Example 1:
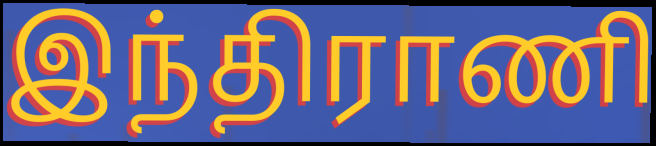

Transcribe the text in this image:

இந்திராணி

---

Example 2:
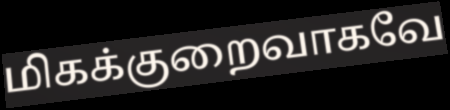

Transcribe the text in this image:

மிகக்குறைவாகவே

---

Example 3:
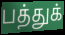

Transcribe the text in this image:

பத்துக்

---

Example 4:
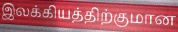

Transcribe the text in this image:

இலக்கியத்திற்குமான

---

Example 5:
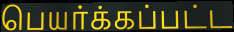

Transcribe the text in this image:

பெயர்க்கப்பட்ட